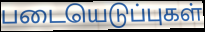
படையெடுப்புகள்